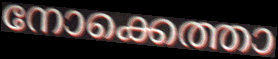
നോക്കെത്താ